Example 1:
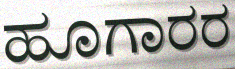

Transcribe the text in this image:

ಹೂಗಾರರ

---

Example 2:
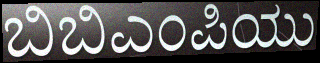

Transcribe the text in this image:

ಬಿಬಿಎಂಪಿಯು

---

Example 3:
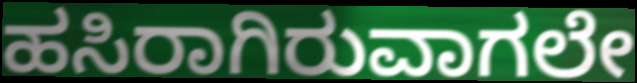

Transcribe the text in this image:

ಹಸಿರಾಗಿರುವಾಗಲೇ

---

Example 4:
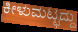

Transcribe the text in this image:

ಕೀಳುಮಟ್ಟದ್ದು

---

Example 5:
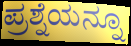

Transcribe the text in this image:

ಪ್ರಶ್ನೆಯನ್ನೂ